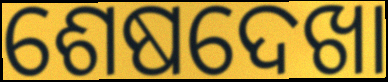
ଶେଷଦେଖା